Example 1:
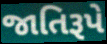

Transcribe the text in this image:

જાતિરૂપે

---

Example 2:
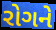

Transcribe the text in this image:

રોગને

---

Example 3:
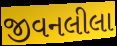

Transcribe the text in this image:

જીવનલીલા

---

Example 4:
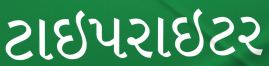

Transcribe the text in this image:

ટાઇપરાઇટર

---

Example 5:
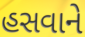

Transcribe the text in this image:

હસવાને